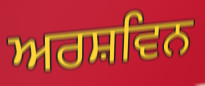
ਅਰਸ਼ਵਿਨ